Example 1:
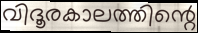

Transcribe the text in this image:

വിദൂരകാലത്തിന്റെ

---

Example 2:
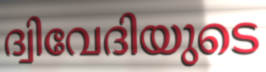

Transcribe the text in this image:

ദ്വിവേദിയുടെ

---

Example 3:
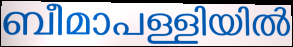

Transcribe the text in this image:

ബീമാപള്ളിയിൽ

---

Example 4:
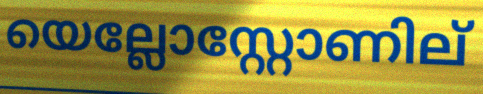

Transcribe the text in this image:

യെല്ലോസ്റ്റോണില്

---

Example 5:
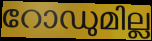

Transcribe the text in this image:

റോഡുമില്ല